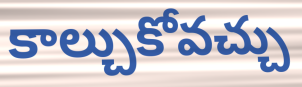
కాల్చుకోవచ్చు